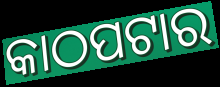
କାଠପଟାର